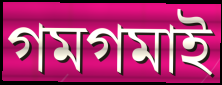
গমগমাই